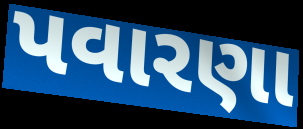
પવારણા